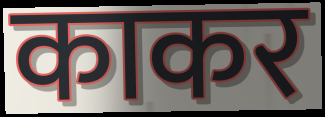
काकर